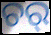
ଚର୍